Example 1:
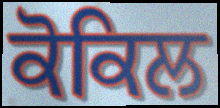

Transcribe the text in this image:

ਕੋਕਿਲ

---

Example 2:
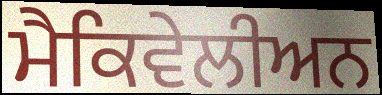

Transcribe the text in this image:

ਮੈਕਿਵੇਲੀਅਨ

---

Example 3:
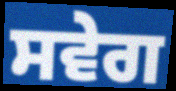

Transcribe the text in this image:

ਸਵੇਗ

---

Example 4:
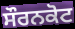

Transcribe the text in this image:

ਸੌਰਨਕੋਟ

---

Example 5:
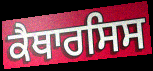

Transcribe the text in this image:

ਕੈਥਾਰਸਿਸ